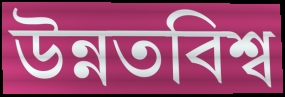
উন্নতবিশ্ব